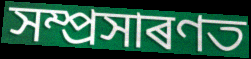
সম্প্ৰসাৰণত